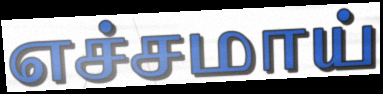
எச்சமாய்